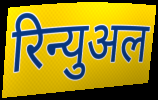
रिन्युअल